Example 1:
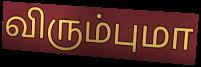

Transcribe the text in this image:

விரும்புமா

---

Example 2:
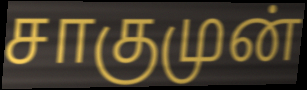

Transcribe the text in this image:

சாகுமுன்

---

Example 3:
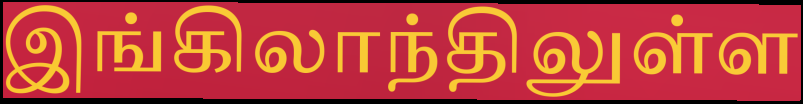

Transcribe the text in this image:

இங்கிலாந்திலுள்ள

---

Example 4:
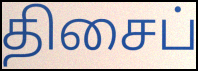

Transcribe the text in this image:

திசைப்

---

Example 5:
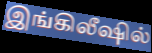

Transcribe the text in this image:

இங்கிலீஷில்